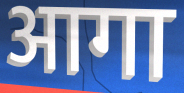
आगा